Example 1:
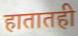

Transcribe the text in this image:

हातातही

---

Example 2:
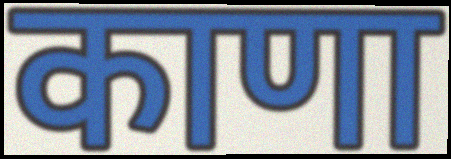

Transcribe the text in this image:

काणा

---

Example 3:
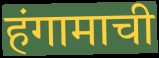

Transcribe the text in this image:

हंगामाची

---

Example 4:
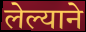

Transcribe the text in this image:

लेल्याने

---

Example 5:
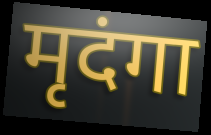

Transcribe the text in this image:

मृदंगा